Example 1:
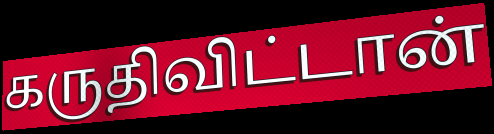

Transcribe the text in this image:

கருதிவிட்டான்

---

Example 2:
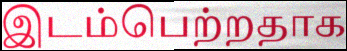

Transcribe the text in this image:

இடம்பெற்றதாக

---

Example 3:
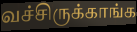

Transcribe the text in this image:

வச்சிருக்காங்க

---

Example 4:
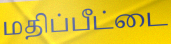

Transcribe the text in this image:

மதிப்பீட்டை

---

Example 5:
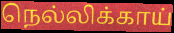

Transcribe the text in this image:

நெல்லிக்காய்